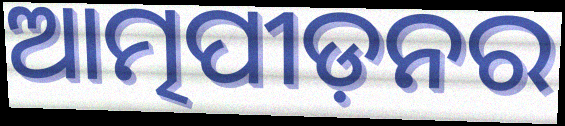
ଆତ୍ମପୀଡ଼ନର